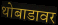
थोबाडावर